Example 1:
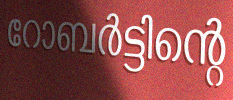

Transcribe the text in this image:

റോബർട്ടിന്റെ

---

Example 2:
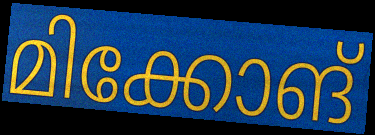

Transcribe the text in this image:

മിക്കോങ്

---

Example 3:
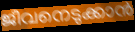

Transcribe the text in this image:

ജീവനെടുക്കാൻ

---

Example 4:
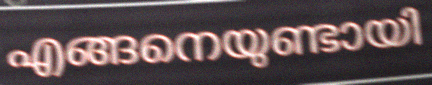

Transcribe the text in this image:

എങ്ങനെയുണ്ടായി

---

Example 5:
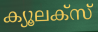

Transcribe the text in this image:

ക്യൂലക്സ്